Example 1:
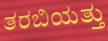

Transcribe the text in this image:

ತರಬಿಯತ್ತು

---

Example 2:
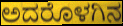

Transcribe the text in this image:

ಅದರೊಳಗಿನ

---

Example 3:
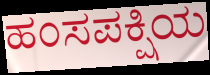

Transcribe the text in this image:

ಹಂಸಪಕ್ಷಿಯ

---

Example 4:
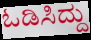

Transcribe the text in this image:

ಓಡಿಸಿದ್ದು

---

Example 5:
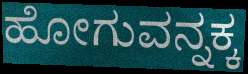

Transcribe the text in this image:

ಹೋಗುವನ್ನಕ್ಕ